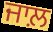
ਜਾਲ਼